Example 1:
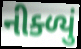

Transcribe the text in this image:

નીક્ળ્યું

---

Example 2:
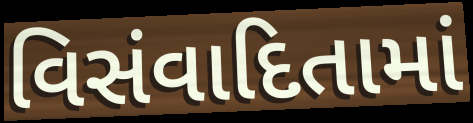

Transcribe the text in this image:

વિસંવાદિતામાં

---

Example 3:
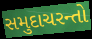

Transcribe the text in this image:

સમુદાચરન્તો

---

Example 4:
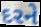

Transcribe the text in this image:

દરને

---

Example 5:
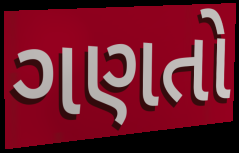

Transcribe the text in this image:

ગણતો